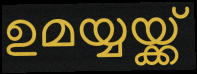
ഉമയ്യയ്ക്ക്